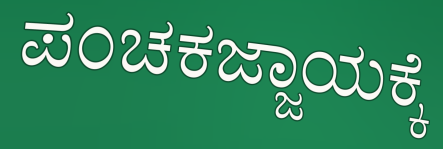
ಪಂಚಕಜ್ಜಾಯಕ್ಕೆ